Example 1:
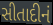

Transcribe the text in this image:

સીતાદીનં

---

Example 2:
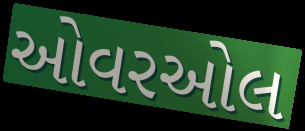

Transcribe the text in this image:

ઓવરઓલ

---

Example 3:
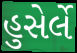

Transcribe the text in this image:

હુસેર્લે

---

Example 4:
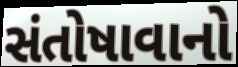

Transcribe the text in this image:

સંતોષાવાનો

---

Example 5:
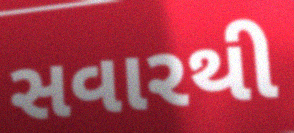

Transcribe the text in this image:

સવારથી